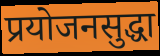
प्रयोजनसुद्धा